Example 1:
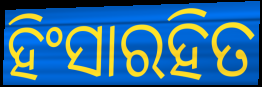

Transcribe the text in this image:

ହିଂସାରହିତ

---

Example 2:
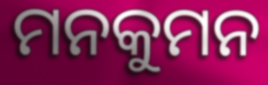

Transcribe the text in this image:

ମନକୁମନ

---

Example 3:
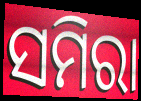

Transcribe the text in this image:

ସମିରା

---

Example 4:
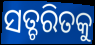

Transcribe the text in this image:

ସତ୍ଚରିତକୁ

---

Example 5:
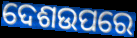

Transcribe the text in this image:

ଦେଶଉପରେ